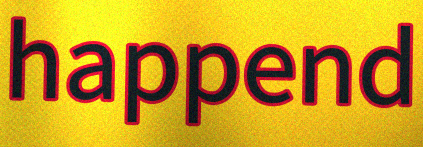
happend